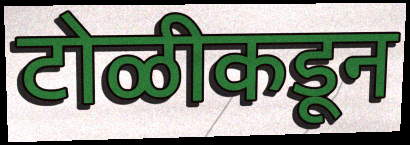
टोळीकडून